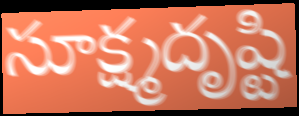
సూక్ష్మదృష్టి